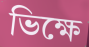
ভিক্ষে